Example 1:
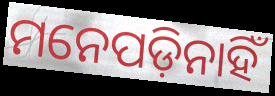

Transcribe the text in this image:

ମନେପଡ଼ିନାହିଁ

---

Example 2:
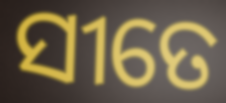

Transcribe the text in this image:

ସୀତେ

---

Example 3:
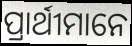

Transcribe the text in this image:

ପ୍ରାର୍ଥୀମାନେ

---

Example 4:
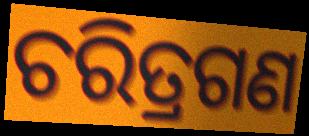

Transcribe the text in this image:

ଚରିତ୍ରଗଣ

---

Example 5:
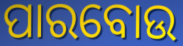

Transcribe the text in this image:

ପାରବୋଉ